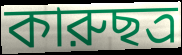
কারুছত্র